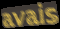
avais